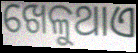
ଖେଳୁଥାଏ